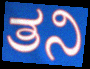
ತನಿ